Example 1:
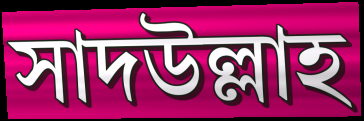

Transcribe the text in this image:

সাদউল্লাহ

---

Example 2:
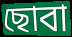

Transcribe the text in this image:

ছোবা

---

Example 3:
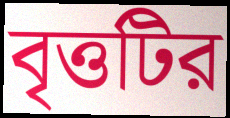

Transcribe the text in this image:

বৃত্তটির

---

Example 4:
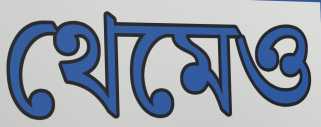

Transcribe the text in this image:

থেমেও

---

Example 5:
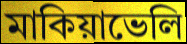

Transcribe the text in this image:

মাকিয়াভেলি